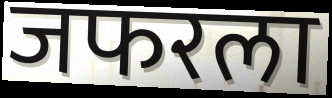
जफरला